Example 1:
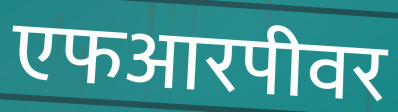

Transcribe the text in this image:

एफआरपीवर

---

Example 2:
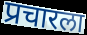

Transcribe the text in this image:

प्रचारला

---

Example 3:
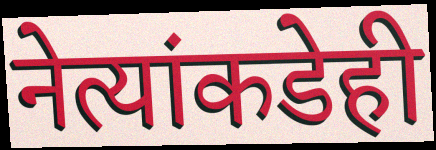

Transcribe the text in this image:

नेत्यांकडेही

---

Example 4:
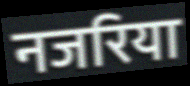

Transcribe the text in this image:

नजरिया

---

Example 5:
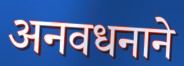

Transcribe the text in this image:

अनवधनाने